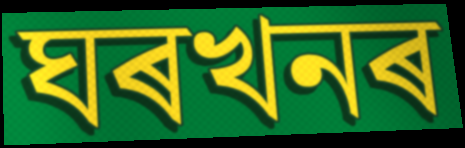
ঘৰখনৰ